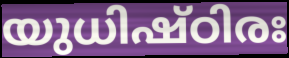
യുധിഷ്ഠിരഃ